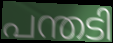
പന്തടി